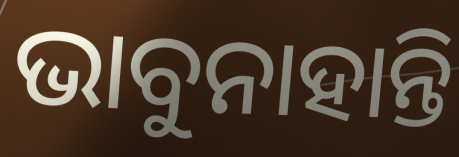
ଭାବୁନାହାନ୍ତି